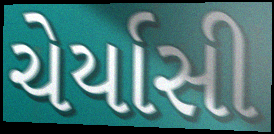
ચેર્યાસી